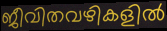
ജീവിതവഴികളിൽ